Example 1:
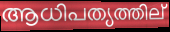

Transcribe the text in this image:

ആധിപത്യത്തില്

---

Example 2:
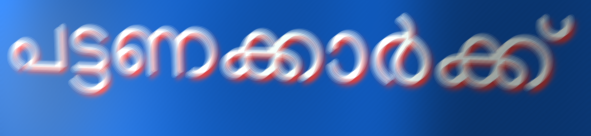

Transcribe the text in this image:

പട്ടണക്കാർക്ക്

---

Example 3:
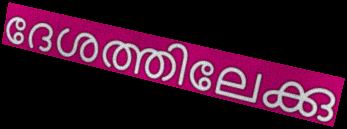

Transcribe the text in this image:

ദേശത്തിലേക്കു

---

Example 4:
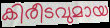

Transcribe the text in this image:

കിരീടവുമായ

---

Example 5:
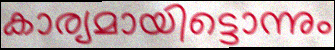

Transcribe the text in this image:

കാര്യമായിട്ടൊന്നും